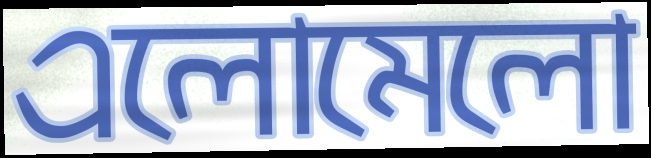
এলোমেলো